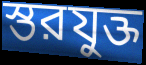
স্তরযুক্ত